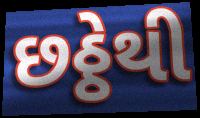
છઠ્ઠેથી